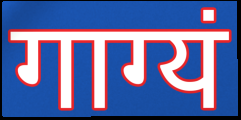
गाग्यं